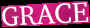
GRACE